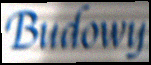
Budowy